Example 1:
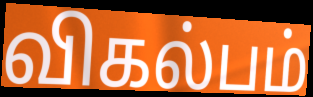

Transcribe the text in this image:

விகல்பம்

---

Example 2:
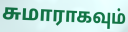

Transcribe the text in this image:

சுமாராகவும்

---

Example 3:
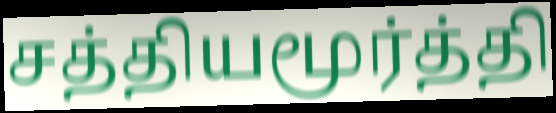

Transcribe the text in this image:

சத்தியமூர்த்தி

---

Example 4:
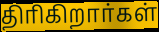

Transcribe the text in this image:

திரிகிறார்கள்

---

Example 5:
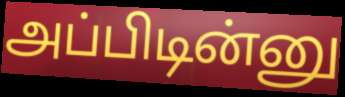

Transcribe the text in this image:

அப்பிடின்னு